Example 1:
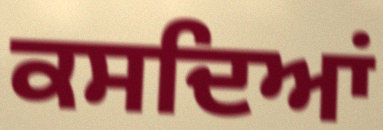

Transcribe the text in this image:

ਕਸਦਿਆਂ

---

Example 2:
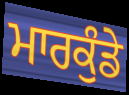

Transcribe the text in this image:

ਮਾਰਕੁੰਡੇ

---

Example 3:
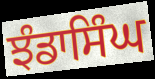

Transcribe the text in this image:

ਝੰਡਾਸਿੰਘ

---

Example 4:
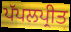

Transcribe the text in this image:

ਪੱਪਲਪ੍ਰੀਤ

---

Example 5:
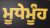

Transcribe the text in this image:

ਮੂਧੇਮੂੰਹ